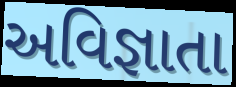
અવિજ્ઞાતા